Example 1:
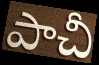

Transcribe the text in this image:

పాచీ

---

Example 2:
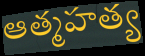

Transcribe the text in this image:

ఆత్మహత్య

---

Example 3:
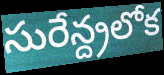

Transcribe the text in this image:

సురేన్ద్రలోక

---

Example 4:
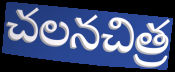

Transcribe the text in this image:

చలనచిత్ర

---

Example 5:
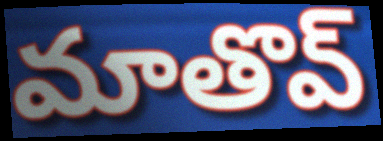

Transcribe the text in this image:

మాతొవ్